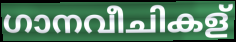
ഗാനവീചികള്